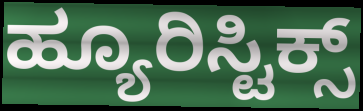
ಹ್ಯೂರಿಸ್ಟಿಕ್ಸ್